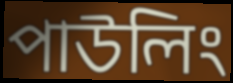
পাউলিং